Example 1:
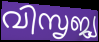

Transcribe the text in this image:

വിസൃജ്യ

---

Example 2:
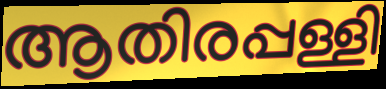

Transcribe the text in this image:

ആതിരപ്പള്ളി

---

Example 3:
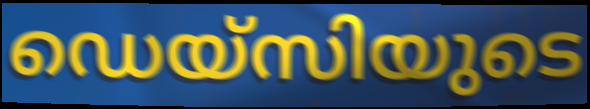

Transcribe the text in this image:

ഡെയ്സിയുടെ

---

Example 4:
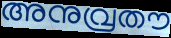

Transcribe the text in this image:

അനുവ്രതൗ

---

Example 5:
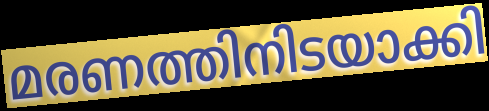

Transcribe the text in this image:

മരണത്തിനിടയാക്കി